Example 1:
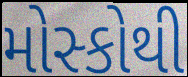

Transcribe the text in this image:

મોસ્કોથી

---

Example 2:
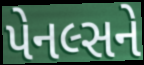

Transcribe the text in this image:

પેનલ્સને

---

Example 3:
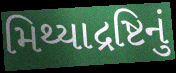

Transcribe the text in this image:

મિથ્યાદ્રષ્ટિનું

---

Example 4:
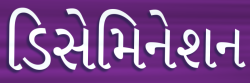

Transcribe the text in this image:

ડિસેમિનેશન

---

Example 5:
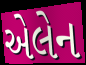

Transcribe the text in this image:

એલેન